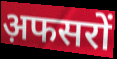
अ़फसरों